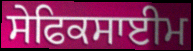
ਸੇਫਿਕਸਾਈਮ